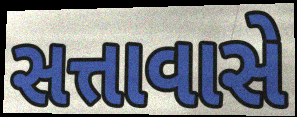
સત્તાવાસે